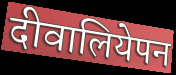
दीवालियेपन